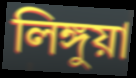
লিঙ্গুয়া